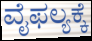
ವೈಫಲ್ಯಕ್ಕೆ